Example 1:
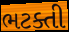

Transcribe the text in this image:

ભટક્તી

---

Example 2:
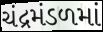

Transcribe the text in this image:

ચંદ્રમંડળમાં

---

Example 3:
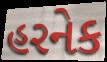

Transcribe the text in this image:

હરનેક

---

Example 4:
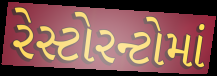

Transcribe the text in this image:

રેસ્ટોરન્ટોમાં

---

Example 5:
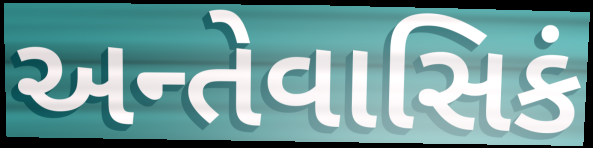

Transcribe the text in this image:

અન્તેવાસિકં